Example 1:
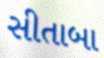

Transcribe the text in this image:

સીતાબા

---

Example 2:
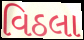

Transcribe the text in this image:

વિઠલા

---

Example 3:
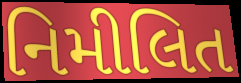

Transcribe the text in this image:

નિમીલિત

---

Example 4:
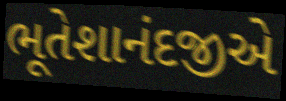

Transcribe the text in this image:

ભૂતેશાનંદજીએ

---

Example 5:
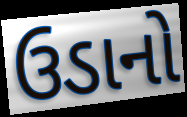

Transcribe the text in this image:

ઉડાનો